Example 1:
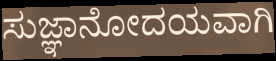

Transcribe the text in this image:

ಸುಜ್ಞಾನೋದಯವಾಗಿ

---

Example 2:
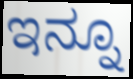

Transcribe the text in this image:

ಇನ್ನೂ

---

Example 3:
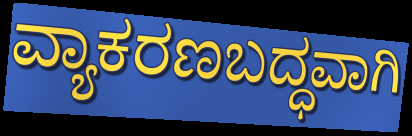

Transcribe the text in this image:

ವ್ಯಾಕರಣಬದ್ಧವಾಗಿ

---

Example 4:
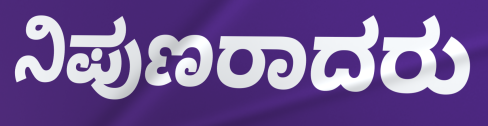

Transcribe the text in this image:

ನಿಪುಣರಾದರು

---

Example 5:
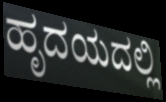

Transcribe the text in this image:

ಹೃದಯದಲ್ಲಿ